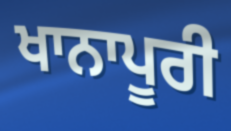
ਖਾਨਾਪੂਰੀ